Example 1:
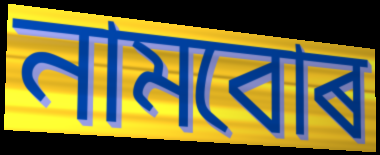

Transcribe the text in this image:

নামবোৰ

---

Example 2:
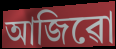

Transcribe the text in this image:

আজিৱো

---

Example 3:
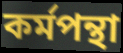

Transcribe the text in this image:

কৰ্মপন্থা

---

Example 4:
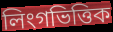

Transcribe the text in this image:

লিংগভিত্তিক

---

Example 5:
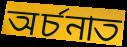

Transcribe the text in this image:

অৰ্চনাত